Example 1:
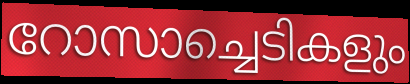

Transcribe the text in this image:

റോസാച്ചെടികളും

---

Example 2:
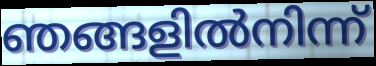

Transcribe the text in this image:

ഞങ്ങളിൽനിന്ന്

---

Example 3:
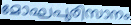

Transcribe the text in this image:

മോഘപുരിസാനം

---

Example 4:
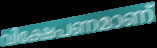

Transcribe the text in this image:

വിക്ഷേപണമാണ്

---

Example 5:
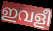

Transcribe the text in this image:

ഇവളീ